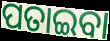
ପତାଇବା